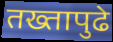
तख्तापुढे